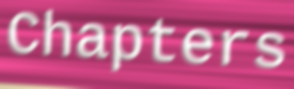
Chapters